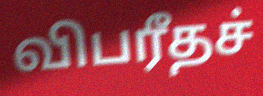
விபரீதச்